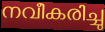
നവീകരിച്ചു